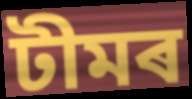
টীমৰ